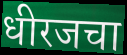
धीरजचा